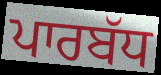
ਪਾਰਬੱਧ